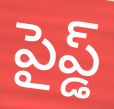
పైప్డ్